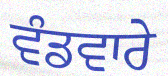
ਵੰਡਵਾਰੇ